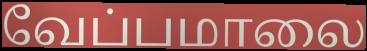
வேப்பமாலை